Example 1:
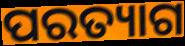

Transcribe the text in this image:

ପରତ୍ୟାଗ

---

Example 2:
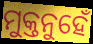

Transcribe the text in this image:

ମୁକ୍ତନୁହେଁ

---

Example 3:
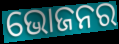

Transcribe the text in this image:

ଭୋଜନର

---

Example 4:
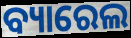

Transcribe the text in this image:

ବ୍ୟାରେଲ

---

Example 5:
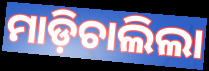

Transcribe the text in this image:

ମାଡ଼ିଚାଲିଲା